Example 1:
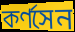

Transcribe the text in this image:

কর্ণসেন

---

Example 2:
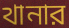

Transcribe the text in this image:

থানার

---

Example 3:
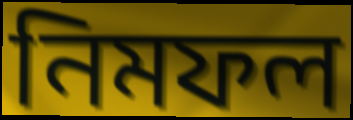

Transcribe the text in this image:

নিমফল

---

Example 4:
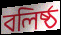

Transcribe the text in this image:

বলিষ্ঠ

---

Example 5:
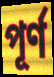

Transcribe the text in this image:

পূর্ণ